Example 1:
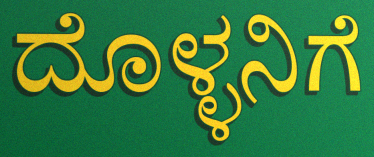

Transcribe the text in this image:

ದೊಳ್ಳನಿಗೆ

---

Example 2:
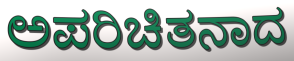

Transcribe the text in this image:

ಅಪರಿಚಿತನಾದ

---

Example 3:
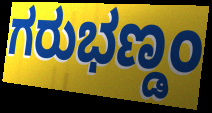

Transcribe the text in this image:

ಗರುಭಣ್ಡಂ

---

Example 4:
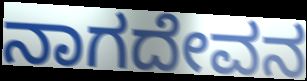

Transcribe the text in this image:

ನಾಗದೇವನ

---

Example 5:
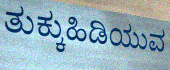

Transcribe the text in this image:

ತುಕ್ಕುಹಿಡಿಯುವ